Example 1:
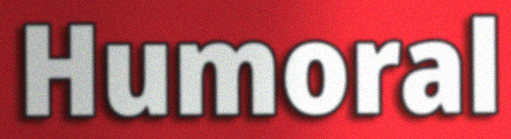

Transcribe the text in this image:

Humoral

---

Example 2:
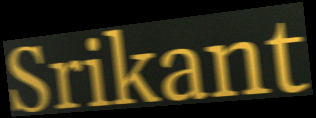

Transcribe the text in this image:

Srikant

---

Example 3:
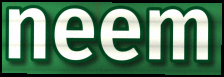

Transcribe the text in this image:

neem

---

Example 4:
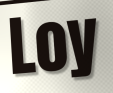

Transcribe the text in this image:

Loy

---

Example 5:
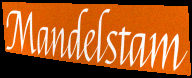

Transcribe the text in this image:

Mandelstam